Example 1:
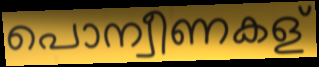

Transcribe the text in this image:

പൊന്വീണകള്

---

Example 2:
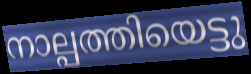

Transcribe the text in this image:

നാല്പത്തിയെട്ടു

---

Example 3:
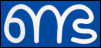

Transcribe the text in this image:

ണ്ട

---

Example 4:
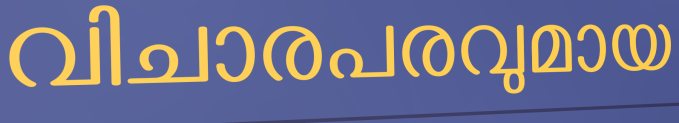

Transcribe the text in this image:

വിചാരപരവുമായ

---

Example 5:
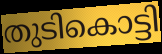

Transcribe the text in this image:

തുടികൊട്ടി